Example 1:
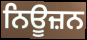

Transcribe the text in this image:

ਨਿਊਜ਼ਨ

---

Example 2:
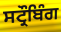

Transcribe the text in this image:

ਸਟ੍ਰੌਬਿੰਗ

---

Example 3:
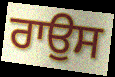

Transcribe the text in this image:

ਰਾਉਸ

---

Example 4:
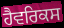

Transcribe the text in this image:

ਹੈਵਰਿਕਸ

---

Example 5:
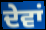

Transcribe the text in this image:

ਦੇਵਾਂ